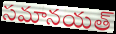
సమానయత్